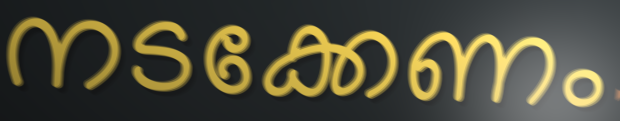
നടക്കേണം